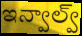
ఇన్వాల్వ్